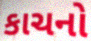
કાચનો